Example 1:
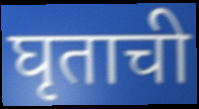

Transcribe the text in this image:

घृताची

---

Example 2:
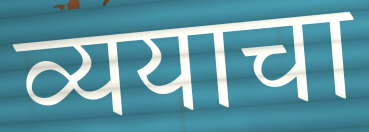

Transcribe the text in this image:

व्ययाचा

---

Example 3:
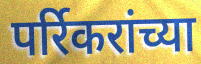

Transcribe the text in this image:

पर्रिकरांच्या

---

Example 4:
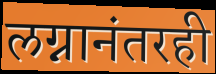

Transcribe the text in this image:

लग्नानंतरही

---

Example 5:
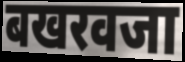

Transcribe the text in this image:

बखरवजा